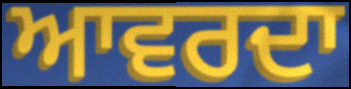
ਆਵਰਦਾ